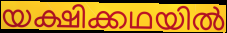
യക്ഷിക്കഥയിൽ